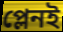
প্লেনই